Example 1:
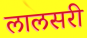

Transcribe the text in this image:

लालसरी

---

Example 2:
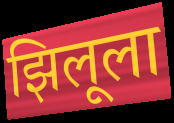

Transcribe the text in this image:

झिलूला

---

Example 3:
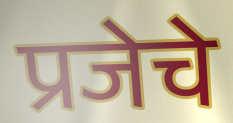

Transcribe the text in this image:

प्रजेचे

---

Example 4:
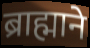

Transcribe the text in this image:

ब्राह्माने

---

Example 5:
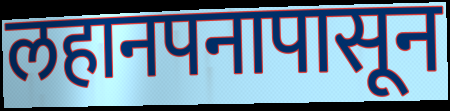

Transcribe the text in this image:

लहानपनापासून